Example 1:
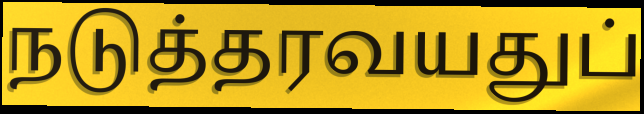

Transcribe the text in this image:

நடுத்தரவயதுப்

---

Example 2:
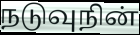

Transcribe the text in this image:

நடுவுநின்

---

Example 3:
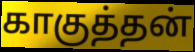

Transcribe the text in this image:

காகுத்தன்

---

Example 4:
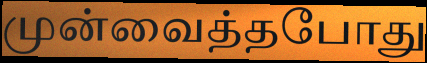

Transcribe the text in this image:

முன்வைத்தபோது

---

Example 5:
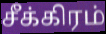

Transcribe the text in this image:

சீக்கிரம்